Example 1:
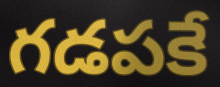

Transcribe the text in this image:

గడపకే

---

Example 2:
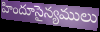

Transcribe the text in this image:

హిందూసైన్యములు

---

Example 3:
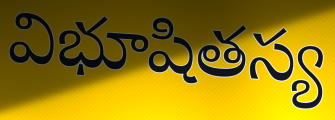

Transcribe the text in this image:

విభూషితస్య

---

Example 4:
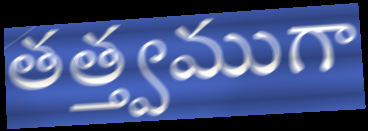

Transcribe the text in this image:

తత్త్వముగా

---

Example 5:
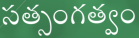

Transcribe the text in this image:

సత్సంగత్వం